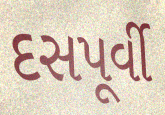
દસપૂર્વી